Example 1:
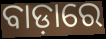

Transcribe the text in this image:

ବାଡ଼ାରେ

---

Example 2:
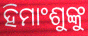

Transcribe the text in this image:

ହିମାଂଶୁଙ୍କୁ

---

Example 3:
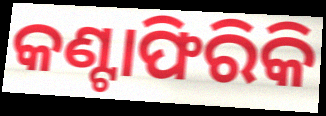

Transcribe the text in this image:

କଣ୍ଟାଫିରିକି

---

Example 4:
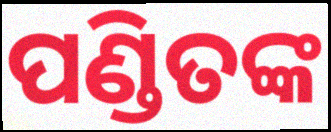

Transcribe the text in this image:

ପଣ୍ଡିତଙ୍କ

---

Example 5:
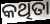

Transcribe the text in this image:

କଥିତା